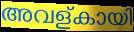
അവള്കായി